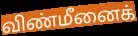
விண்மீனைக்